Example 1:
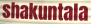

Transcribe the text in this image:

shakuntala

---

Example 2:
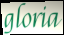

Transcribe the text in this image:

gloria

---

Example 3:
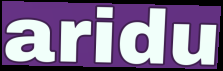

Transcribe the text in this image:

aridu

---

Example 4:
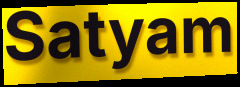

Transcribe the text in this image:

Satyam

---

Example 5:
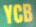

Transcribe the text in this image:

YCB